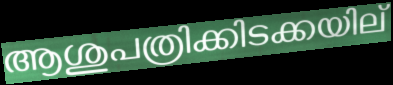
ആശുപത്രിക്കിടക്കയില്